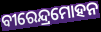
ବୀରେନ୍ଦ୍ରମୋହନ